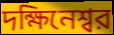
দক্ষিনেশ্বর